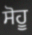
ਸੋਹੂ